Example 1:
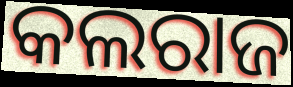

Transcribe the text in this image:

କଲରାଜ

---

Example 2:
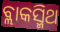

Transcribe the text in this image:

ବ୍ଲାକସ୍ମିଥ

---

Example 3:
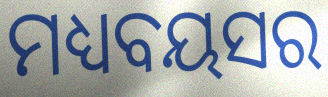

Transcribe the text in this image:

ମଧ୍ୟବୟସର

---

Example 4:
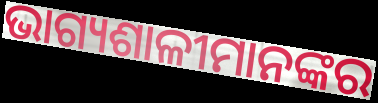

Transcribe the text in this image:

ଭାଗ୍ୟଶାଳୀମାନଙ୍କର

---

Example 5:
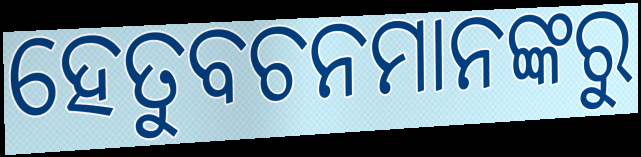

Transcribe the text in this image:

ହେତୁବଚନମାନଙ୍କରୁ